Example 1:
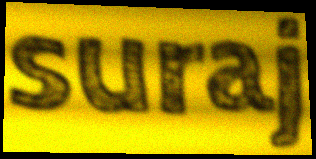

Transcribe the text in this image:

suraj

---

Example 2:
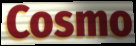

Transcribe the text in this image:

Cosmo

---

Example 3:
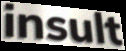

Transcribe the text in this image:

insult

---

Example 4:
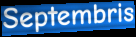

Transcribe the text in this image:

Septembris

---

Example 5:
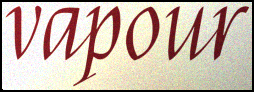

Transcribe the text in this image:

vapour